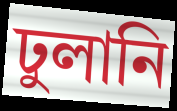
ঢুলানি